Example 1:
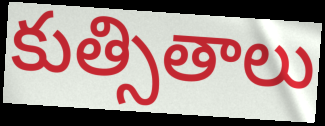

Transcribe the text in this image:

కుత్సితాలు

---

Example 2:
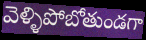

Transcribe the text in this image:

వెళ్ళిపోబోతుండగా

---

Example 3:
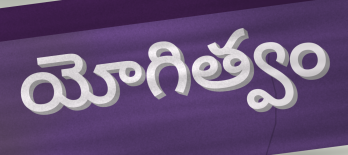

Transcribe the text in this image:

యోగిత్వం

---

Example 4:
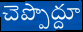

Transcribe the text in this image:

చెప్పొద్దూ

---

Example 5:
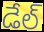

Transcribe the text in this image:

డేల్